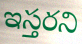
ఇస్తరని